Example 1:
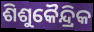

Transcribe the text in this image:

ଶିଶୁକୈନ୍ଦ୍ରିକ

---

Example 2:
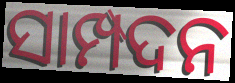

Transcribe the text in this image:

ସାମ୍ପଦନ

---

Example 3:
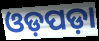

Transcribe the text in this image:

ଓଡ଼ପଡ଼ା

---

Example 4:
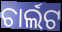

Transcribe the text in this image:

ଚାର୍ଲଟ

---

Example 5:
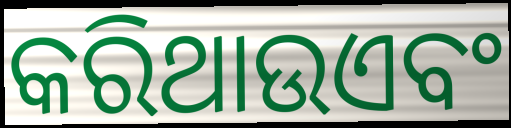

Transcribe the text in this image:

କରିଥାଉଏବଂ